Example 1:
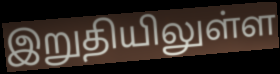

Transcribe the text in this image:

இறுதியிலுள்ள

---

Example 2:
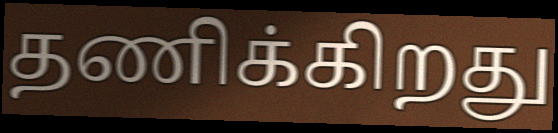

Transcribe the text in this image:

தணிக்கிறது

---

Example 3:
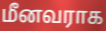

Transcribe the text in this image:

மீனவராக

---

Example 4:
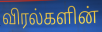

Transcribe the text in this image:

விரல்களின்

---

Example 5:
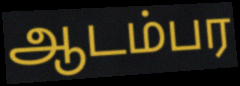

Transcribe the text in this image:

ஆடம்பர